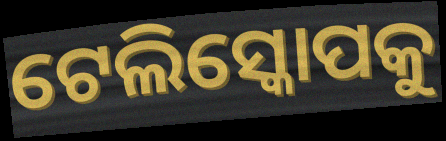
ଟେଲିସ୍କୋପକୁ